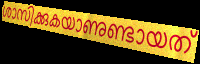
ശാസിക്കുകയാണുണ്ടായത്